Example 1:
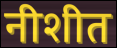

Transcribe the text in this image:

नीशीत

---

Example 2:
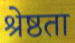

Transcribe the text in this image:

श्रेष्ठता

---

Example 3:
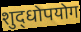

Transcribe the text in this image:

शुद्धोपयोग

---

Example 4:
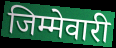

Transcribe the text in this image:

जिम्मेवारी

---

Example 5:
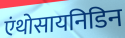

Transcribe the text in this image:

एंथोसायनिडिन